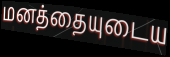
மனத்தையுடைய